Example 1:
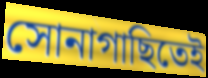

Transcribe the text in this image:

সোনাগাছিতেই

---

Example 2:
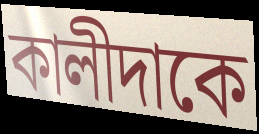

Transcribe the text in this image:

কালীদাকে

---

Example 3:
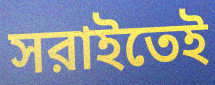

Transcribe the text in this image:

সরাইতেই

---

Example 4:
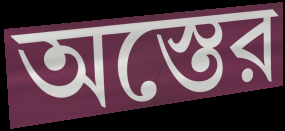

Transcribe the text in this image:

অস্তের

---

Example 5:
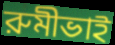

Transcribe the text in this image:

রুমীভাই